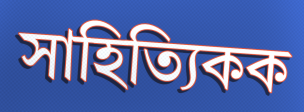
সাহিত্যিকক